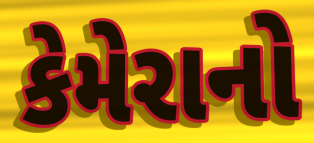
કેમેરાનો